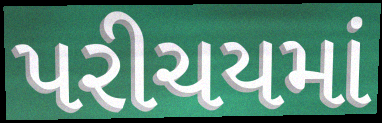
પરીચયમાં